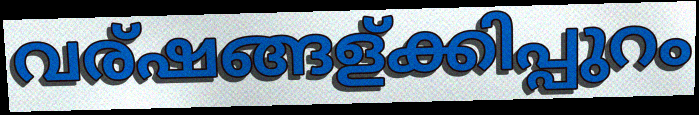
വര്ഷങ്ങള്ക്കിപ്പുറം